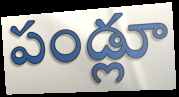
పండ్లూ